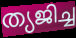
ത്യജിച്ച